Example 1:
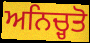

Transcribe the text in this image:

ਅਨਿਚ੍ਚਤੋ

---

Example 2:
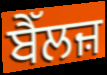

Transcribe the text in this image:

ਬੈੱਲਜ਼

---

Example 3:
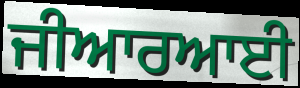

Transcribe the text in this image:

ਜੀਆਰਆਈ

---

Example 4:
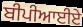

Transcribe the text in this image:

ਬੀਪੀਆਈਏ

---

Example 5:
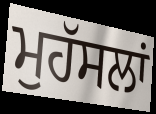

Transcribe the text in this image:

ਮੁਹੱਸਲਾਂ